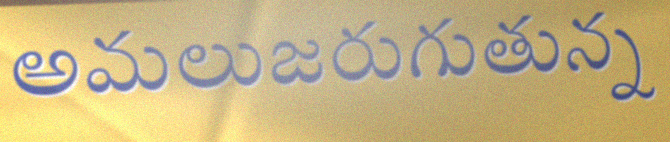
అమలుజరుగుతున్న